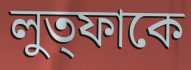
লুত্ফাকে